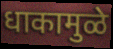
धाकामुळे